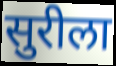
सुरीला